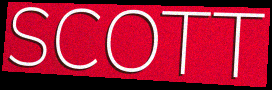
SCOTT